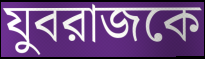
যুবরাজকে